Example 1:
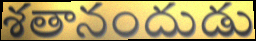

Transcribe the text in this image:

శతానందుడు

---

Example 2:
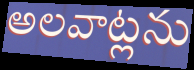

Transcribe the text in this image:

అలవాట్లను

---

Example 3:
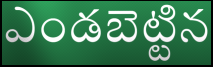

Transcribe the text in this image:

ఎండబెట్టిన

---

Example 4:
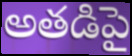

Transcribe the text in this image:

అతడిపై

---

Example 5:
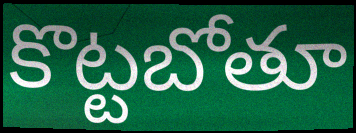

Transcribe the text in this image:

కొట్టబోతూ